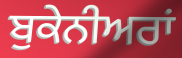
ਬੁਕੇਨੀਅਰਾਂ